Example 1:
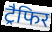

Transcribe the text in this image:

ट्रैफिर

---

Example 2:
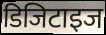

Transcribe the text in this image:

डिजिटाइज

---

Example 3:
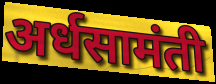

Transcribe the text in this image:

अर्धसामंती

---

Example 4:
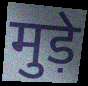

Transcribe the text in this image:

मुड़े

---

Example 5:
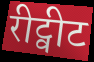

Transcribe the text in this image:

रीट्वीट